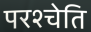
परश्चेति